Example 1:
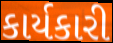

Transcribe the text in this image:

કાર્યકારી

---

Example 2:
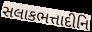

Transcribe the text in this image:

સલાકભત્તાદીનિ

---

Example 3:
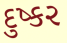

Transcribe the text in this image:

દુષ્કર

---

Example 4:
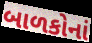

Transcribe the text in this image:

બાળકોનાં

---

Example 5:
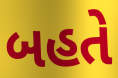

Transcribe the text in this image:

બહતે